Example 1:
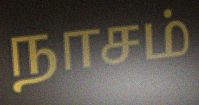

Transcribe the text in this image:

நாசம்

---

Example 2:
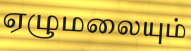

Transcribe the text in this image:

ஏழுமலையும்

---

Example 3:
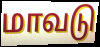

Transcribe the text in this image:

மாவடு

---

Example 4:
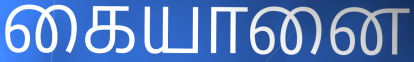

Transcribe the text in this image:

கையானை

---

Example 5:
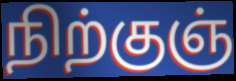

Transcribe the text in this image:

நிற்குஞ்